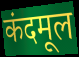
कंदमूल